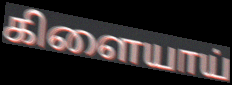
கிளையாய்